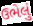
ઉભેલું